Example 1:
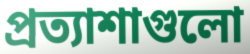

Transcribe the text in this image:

প্রত্যাশাগুলো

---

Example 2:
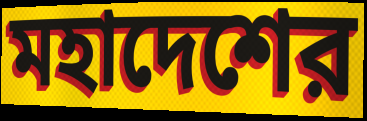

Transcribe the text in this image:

মহাদেশের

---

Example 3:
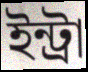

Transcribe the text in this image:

ইন্ট্রা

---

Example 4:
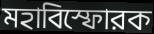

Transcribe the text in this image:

মহাবিস্ফোরক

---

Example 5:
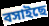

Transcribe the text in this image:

বসাইছে